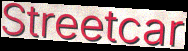
Streetcar